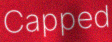
Capped